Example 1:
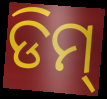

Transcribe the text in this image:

ଡିମ୍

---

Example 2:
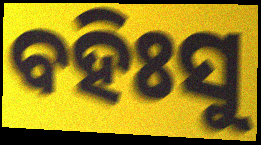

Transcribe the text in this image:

ବହିଃସୁ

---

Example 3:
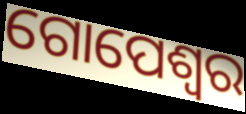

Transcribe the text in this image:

ଗୋପେଶ୍ଵର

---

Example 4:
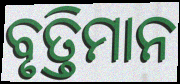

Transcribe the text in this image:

ବୃତ୍ତିମାନ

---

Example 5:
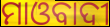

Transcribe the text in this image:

ମାଓବାଦୀ